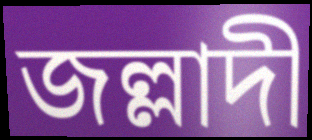
জল্লাদী